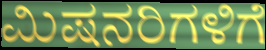
ಮಿಷನರಿಗಳಿಗೆ